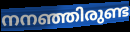
നനഞ്ഞിരുണ്ട